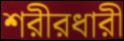
শরীরধারী